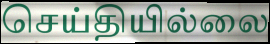
செய்தியில்லை